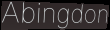
Abingdon